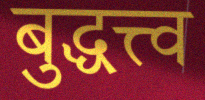
बुद्धत्त्व